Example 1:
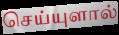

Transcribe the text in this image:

செய்யுளால்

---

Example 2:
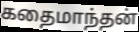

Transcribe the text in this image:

கதைமாந்தன்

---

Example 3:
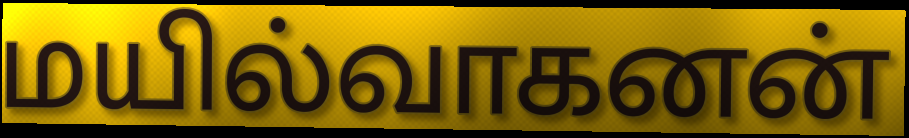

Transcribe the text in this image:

மயில்வாகனன்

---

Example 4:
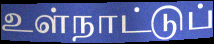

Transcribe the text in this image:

உள்நாட்டுப்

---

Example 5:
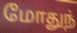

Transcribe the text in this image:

மோதுந்